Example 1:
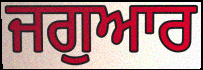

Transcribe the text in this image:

ਜਗੁਆਰ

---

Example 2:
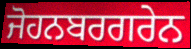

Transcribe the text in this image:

ਜੋਹਨਬਰਗਰੇਨ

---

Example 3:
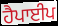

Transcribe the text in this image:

ਹੈਪਾਈਪ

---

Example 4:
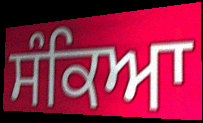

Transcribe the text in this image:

ਸੰਕਿਆ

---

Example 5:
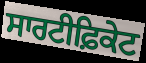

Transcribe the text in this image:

ਸਾਰਟੀਫ਼ਿਕੇਟ